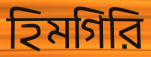
হিমগিরি